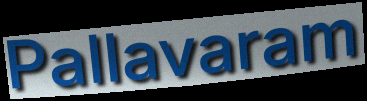
Pallavaram